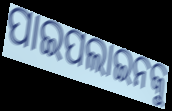
ପାଇପଲାଇନକୁ